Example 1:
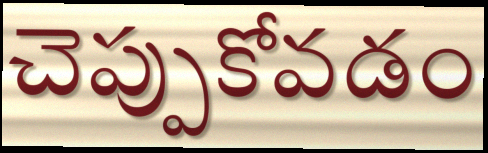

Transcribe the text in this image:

చెప్పుకోవడం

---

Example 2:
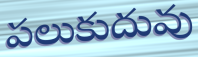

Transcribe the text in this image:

పలుకుదువు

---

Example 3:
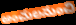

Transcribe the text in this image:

అంచులనుంచి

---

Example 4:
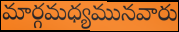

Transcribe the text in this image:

మార్గమధ్యమునవారు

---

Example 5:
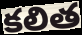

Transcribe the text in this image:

కలిత